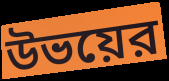
উভয়ের